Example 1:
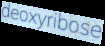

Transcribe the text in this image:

deoxyribose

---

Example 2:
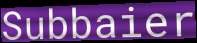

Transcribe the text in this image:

Subbaier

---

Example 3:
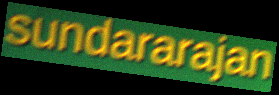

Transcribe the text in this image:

sundararajan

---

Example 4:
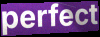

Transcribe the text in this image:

perfect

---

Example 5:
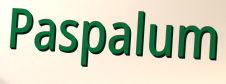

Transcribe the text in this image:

Paspalum